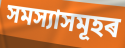
সমস্যাসমূহৰ